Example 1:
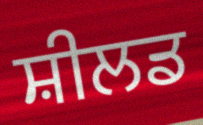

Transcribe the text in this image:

ਸ਼ੀਲਡ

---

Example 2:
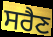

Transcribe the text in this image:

ਸਰੈਣ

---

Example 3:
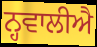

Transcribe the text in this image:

ਨ੍ਹਵਾਲੀਐ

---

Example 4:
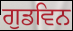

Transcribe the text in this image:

ਗੁਡਵਿਨ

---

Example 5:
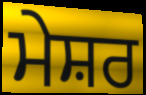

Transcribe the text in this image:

ਮੇਸ਼ਰ